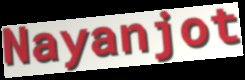
Nayanjot